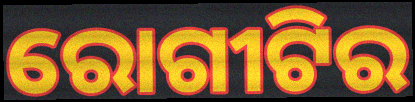
ରୋଗୀଟିର